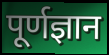
पूर्णज्ञान